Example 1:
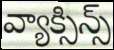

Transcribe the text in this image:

వ్యాక్సిన్స్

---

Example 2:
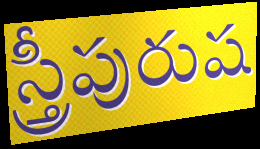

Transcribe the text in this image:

స్త్రీపురుష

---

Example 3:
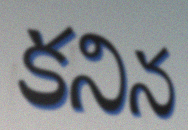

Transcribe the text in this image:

కనిన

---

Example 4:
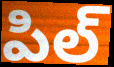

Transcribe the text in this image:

పిల్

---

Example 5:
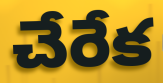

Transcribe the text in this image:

చేరేక